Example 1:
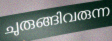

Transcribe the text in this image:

ചുരുങ്ങിവരുന്ന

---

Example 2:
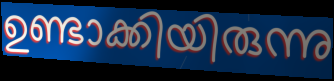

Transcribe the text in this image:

ഉണ്ടാക്കിയിരുന്നു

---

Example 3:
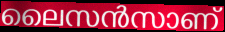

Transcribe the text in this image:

ലൈസൻസാണ്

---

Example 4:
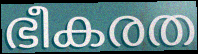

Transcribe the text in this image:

ഭീകരത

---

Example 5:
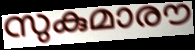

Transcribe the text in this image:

സുകുമാരൗ